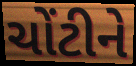
ચોંટીને